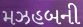
મઝહબની